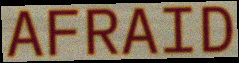
AFRAID